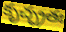
కృచ్ఛ్రతః